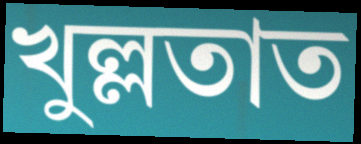
খুল্লতাত